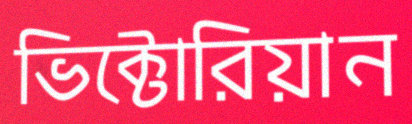
ভিক্টোরিয়ান